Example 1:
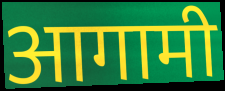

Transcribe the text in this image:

आगामी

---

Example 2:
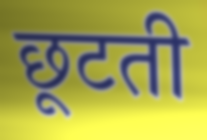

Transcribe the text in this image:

छूटती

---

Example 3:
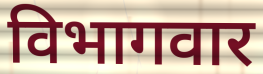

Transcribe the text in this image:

विभागवार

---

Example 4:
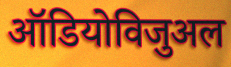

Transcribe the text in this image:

ऑडियोविजुअल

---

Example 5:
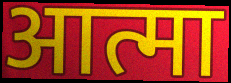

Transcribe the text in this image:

आत्मा